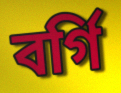
বর্গি